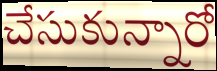
చేసుకున్నారో